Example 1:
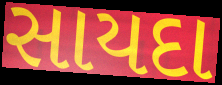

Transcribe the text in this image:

સાયદા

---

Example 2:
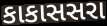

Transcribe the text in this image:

કાકાસસરા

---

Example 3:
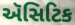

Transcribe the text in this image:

ઍસિટિક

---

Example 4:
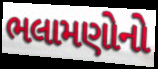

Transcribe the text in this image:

ભલામણોનો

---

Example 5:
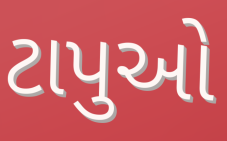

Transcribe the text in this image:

ટાપુઓ